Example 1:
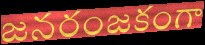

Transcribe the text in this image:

జనరంజకంగా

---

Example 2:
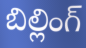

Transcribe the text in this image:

బిల్లింగ్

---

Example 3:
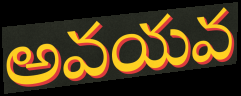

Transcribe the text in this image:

అవయవ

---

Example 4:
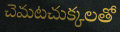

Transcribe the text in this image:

చెమటచుక్కలతో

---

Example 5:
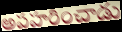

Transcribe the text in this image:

అపహరించాడు